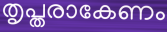
തൃപ്തരാകേണം